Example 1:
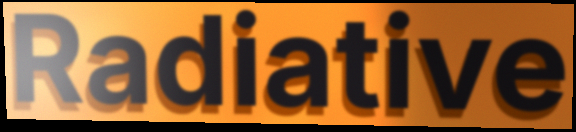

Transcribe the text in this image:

Radiative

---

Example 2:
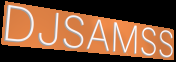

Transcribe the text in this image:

DJSAMSS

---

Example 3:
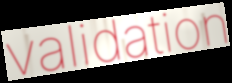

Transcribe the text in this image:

validation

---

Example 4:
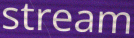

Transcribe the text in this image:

stream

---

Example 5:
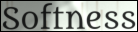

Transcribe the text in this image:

Softness